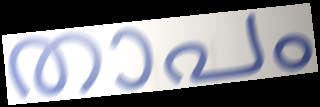
താപം